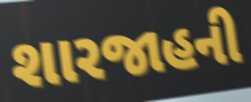
શારજાહની